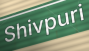
Shivpuri